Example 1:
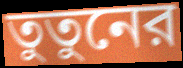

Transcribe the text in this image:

তুতুনের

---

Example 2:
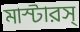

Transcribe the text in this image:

মাস্টারস্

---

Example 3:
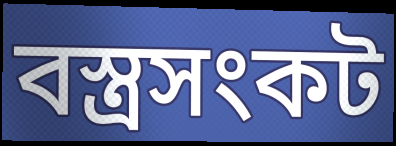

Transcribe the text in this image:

বস্ত্রসংকট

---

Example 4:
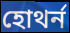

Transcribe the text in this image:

হোথর্ন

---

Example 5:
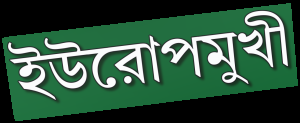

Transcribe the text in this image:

ইউরোপমুখী